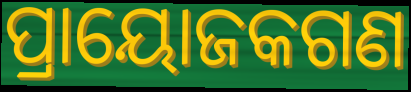
ପ୍ରାୟୋଜକଗଣ